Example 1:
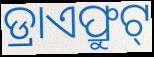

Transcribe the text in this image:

ଡ୍ରାଏଫ୍ରୁଟ୍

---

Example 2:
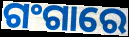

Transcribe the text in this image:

ଗଂଗାରେ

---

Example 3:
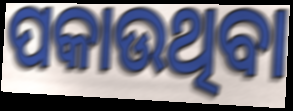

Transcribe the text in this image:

ପକାଉଥିବା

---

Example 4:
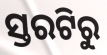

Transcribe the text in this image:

ସ୍ତରଟିରୁ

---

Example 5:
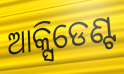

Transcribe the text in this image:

ଆକ୍ସିଡେଣ୍ଟ